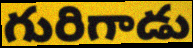
గురిగాడు